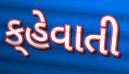
ક્‌હેવાતી